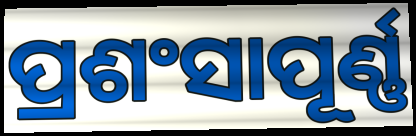
ପ୍ରଶଂସାପୂର୍ଣ୍ଣ